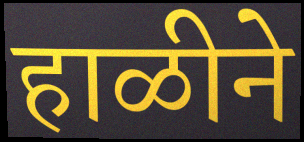
हाळीने